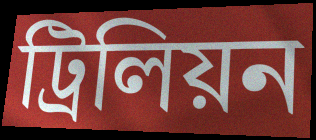
ট্রিলিয়ন